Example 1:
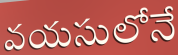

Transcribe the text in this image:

వయసులోనే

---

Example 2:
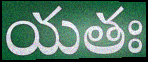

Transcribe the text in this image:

యతః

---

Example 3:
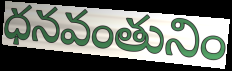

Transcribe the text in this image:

ధనవంతునిం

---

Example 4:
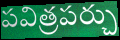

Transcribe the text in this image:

పవిత్రపర్చు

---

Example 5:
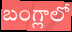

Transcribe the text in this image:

బంగ్లాలో